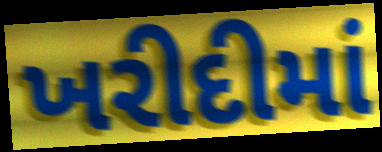
ખરીદીમાં